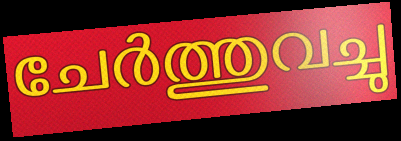
ചേർത്തുവച്ചു